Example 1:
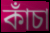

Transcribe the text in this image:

কাঁচা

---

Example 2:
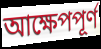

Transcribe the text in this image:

আক্ষেপপূর্ণ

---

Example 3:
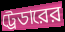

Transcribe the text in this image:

ট্রেডারের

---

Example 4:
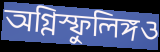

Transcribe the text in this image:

অগ্নিস্ফুলিঙ্গও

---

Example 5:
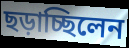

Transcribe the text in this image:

ছড়াচ্ছিলেন